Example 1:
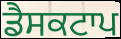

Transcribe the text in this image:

ਡੈਸਕਟਾਪ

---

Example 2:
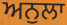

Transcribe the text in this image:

ਅਨੁਲਾ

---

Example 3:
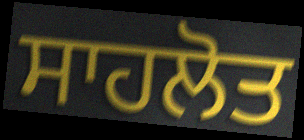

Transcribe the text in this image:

ਸਾਹਲੋਤ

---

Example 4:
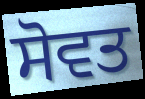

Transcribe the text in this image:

ਸੋਵਤ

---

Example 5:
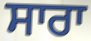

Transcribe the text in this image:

ਸਾਰਾ